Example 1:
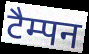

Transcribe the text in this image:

टैम्पन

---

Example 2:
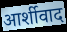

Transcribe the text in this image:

आर्शीवाद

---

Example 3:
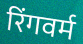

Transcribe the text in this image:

रिंगवर्म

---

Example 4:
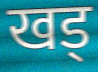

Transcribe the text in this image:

खड्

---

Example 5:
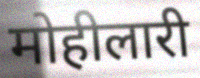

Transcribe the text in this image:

मोहीलारी